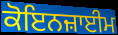
ਕੋਇਨਜ਼ਾਈਮ